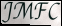
JMFC